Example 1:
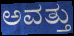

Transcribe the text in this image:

ಅವತ್ತು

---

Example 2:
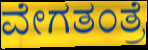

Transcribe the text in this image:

ವೇಗತಂತ್ರೆ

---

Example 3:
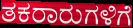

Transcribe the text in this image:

ತಕರಾರುಗಳಿಗೆ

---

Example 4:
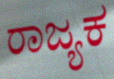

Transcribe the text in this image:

ರಾಜ್ಯಕ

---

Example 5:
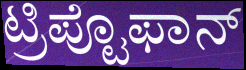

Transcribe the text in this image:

ಟ್ರಿಪ್ಟೊಫಾನ್